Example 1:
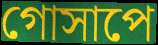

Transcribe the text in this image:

গোসাপে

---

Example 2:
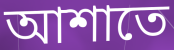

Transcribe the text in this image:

আশাতে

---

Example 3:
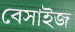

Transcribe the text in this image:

বেসাইজ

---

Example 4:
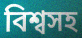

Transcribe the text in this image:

বিশ্বসহ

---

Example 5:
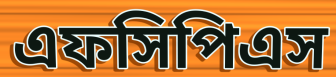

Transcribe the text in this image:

এফসিপিএস